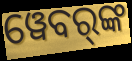
ୱେବର୍‌ଙ୍କ